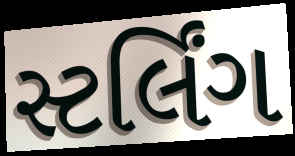
સ્ટર્લિંગ